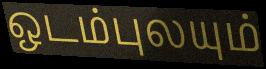
ஒடம்புலயும்